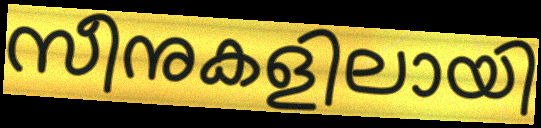
സീനുകളിലായി